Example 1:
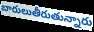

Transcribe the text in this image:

బారులుతీరుతున్నారు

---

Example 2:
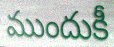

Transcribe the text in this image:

ముందుకీ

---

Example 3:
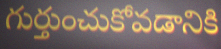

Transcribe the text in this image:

గుర్తుంచుకోవడానికి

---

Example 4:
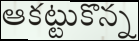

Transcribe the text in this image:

ఆకట్టుకొన్న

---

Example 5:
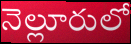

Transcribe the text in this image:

నెల్లూరులో